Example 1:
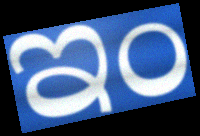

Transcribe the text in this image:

ఇం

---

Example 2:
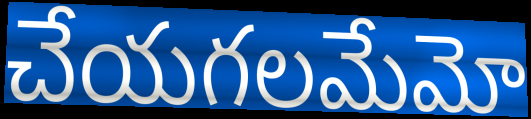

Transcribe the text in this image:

చేయగలమేమో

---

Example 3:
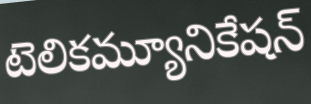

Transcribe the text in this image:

టెలికమ్యూనికేషన్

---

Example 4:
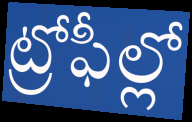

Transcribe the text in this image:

ట్రోఫీల్లో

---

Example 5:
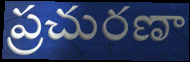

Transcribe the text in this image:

ప్రచురణా